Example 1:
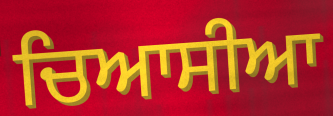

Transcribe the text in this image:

ਚਿਆਸੀਆ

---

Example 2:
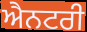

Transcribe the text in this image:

ਐਨਟਰੀ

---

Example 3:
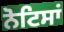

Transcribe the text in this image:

ਨੋਟਿਸਾਂ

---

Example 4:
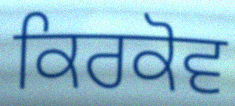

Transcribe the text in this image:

ਕਿਰਕੋਵ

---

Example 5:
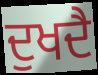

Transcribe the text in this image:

ਦੁਖਦੈ